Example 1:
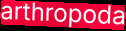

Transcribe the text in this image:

arthropoda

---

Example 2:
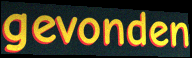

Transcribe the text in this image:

gevonden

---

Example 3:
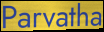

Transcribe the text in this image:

Parvatha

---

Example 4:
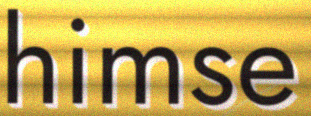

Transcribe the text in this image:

himse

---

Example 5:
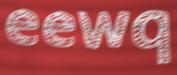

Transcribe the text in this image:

eewq